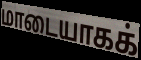
மாடையாகக்